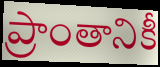
ప్రాంతానికీ